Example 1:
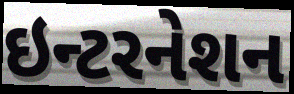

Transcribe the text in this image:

ઇન્ટરનેશન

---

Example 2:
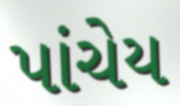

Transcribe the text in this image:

પાંચેય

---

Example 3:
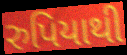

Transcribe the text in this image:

રુપિયાથી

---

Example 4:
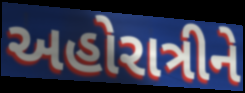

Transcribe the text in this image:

અહોરાત્રીને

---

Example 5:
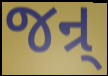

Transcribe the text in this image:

જન્ર્